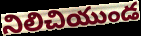
నిలిచియుండ